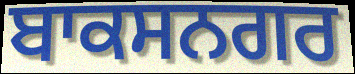
ਬਾਕਸਨਗਰ